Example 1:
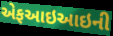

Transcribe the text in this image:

એફઆઇઆઇની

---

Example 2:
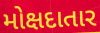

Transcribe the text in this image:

મોક્ષદાતાર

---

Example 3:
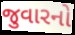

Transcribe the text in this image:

જુવારનો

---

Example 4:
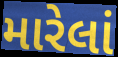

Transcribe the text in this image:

મારેલાં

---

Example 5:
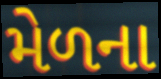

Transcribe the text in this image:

મેળના